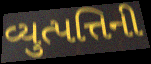
વ્યુત્પત્તિની